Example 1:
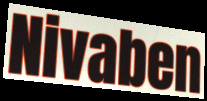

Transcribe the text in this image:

Nivaben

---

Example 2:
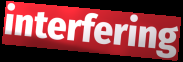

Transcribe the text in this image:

interfering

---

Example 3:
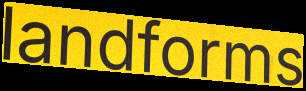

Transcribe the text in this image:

landforms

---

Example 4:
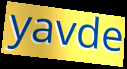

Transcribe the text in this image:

yavde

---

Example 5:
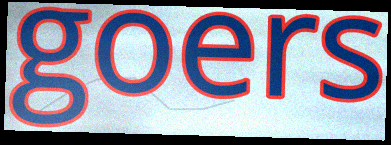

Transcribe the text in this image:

goers